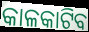
କାଳକାଟିବ